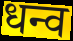
धन्व